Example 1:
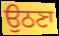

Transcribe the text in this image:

ਉਠਣਾ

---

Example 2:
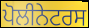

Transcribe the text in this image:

ਪੋਲੀਨੇਟਰਸ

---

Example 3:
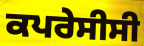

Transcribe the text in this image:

ਕਪਰੇਸੀਸੀ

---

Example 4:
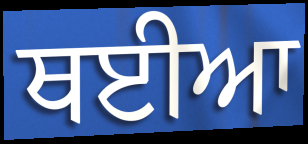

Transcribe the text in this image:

ਥਈਆ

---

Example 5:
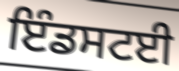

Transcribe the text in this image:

ਇੰਡਸਟਈ